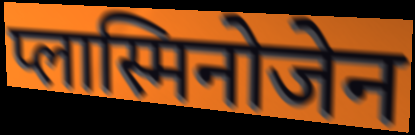
प्लास्मिनोजेन